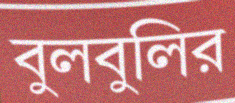
বুলবুলির